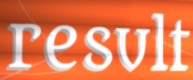
result